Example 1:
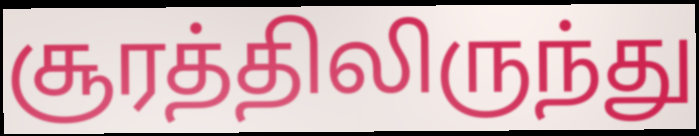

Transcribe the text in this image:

சூரத்திலிருந்து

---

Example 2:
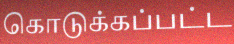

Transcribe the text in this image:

கொடுக்கப்பட்ட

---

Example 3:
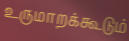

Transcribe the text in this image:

உருமாறக்கூடும்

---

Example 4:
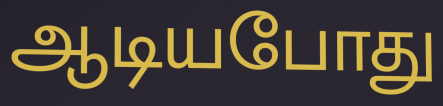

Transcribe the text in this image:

ஆடியபோது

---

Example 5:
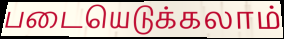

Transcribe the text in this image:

படையெடுக்கலாம்